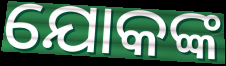
ଯୋକଙ୍କ